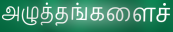
அழுத்தங்களைச்